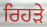
ਰਿਹੜੇ